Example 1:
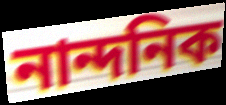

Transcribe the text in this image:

নান্দনিক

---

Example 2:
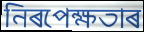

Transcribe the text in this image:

নিৰপেক্ষতাৰ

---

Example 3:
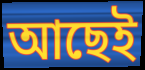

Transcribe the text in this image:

আছেই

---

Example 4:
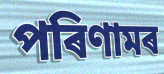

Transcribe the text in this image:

পৰিণামৰ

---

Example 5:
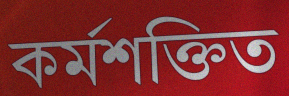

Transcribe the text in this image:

কৰ্মশক্তিত